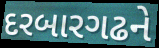
દરબારગઢને